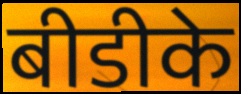
बीडीके